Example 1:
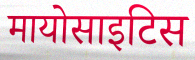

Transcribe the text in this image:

मायोसाइटिस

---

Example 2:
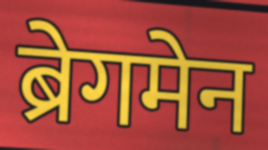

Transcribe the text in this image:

ब्रेगमेन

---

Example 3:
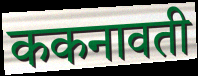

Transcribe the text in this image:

ककनावती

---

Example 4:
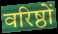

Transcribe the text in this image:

वरिष्ठों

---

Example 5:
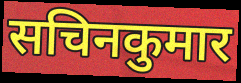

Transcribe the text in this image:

सचिनकुमार